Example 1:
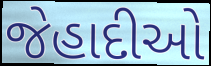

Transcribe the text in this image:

જેહાદીઓ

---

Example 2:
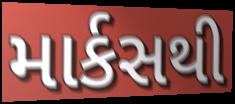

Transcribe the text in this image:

માર્કસથી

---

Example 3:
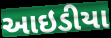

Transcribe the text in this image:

આઇડીયા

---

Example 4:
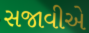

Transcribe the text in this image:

સજાવીએ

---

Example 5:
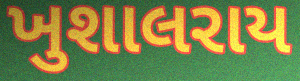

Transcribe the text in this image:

ખુશાલરાય